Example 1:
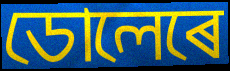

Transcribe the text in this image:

ডোলেৰে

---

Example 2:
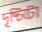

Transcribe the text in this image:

দৃষ্টিটো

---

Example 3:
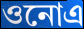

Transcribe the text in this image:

ওনোএ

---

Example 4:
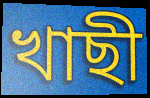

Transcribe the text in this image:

খাছী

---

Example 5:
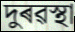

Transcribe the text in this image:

দুৰৱস্থা